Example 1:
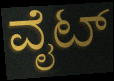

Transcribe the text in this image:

ವೈಟ್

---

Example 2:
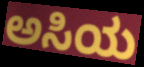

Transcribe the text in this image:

ಅಸಿಯ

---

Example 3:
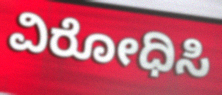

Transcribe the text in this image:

ವಿರೋಧಿಸಿ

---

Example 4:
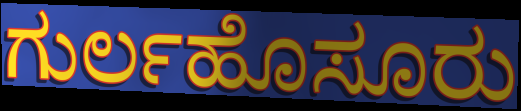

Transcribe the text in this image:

ಗುರ್ಲಹೊಸೂರು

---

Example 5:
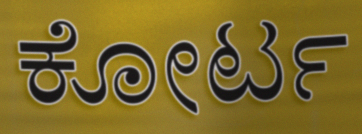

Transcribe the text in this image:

ಕೋರ್ಟ